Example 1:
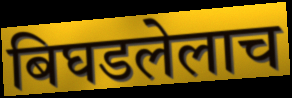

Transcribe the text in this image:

बिघडलेलाच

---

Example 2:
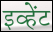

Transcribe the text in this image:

इव्हेंट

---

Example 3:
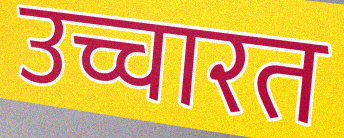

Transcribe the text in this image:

उच्चारत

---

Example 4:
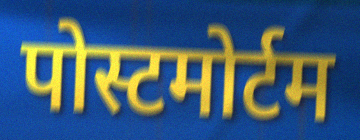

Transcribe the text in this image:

पोस्टमोर्टम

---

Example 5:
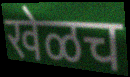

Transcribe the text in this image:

खेळच